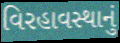
વિરહાવસ્થાનું